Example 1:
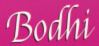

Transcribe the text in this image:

Bodhi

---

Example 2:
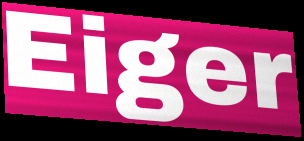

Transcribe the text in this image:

Eiger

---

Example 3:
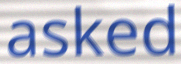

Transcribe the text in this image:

asked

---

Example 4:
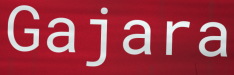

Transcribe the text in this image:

Gajara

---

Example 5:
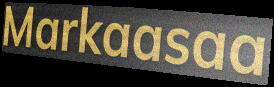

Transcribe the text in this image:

Markaasaa